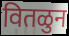
वितळुन